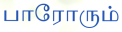
பாரோரும்